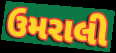
ઉમરાલી